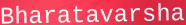
Bharatavarsha